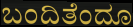
ಬಂದಿತೆಂದೂ